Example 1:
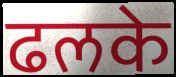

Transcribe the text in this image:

ढलके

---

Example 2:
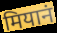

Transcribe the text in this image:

मियानं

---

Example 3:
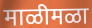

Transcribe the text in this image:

माळीमळा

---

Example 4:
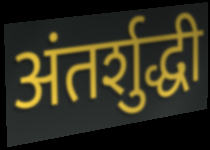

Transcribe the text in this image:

अंतर्शुद्धी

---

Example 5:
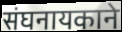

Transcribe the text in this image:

संघनायकाने